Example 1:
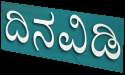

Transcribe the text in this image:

ದಿನವಿಡಿ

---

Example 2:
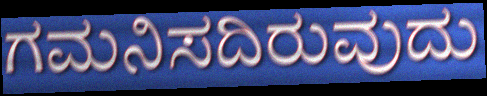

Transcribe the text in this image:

ಗಮನಿಸದಿರುವುದು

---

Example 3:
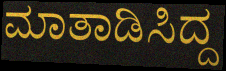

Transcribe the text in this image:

ಮಾತಾಡಿಸಿದ್ದ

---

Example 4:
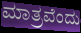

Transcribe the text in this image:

ಮಾತ್ರವೆಂದು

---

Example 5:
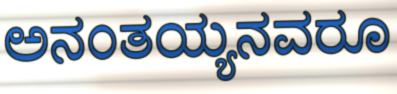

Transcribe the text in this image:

ಅನಂತಯ್ಯನವರೂ